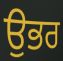
ਉਭਰ